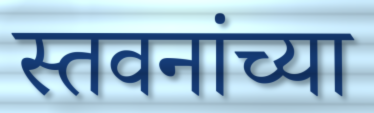
स्तवनांच्या